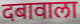
दबावाला